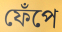
ফেঁপে